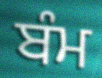
ਬੰਮ